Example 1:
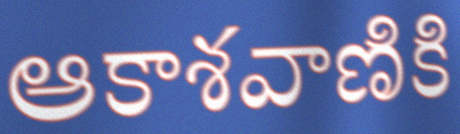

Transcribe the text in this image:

ఆకాశవాణికి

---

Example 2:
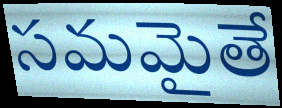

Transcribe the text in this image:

సమమైతే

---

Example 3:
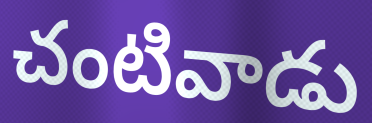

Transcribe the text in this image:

చంటివాడు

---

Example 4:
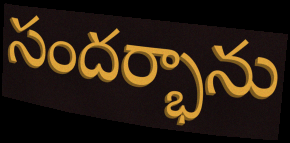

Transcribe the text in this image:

సందర్భాను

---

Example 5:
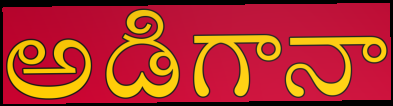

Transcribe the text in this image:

అడిగానా